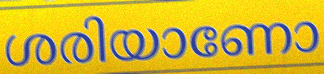
ശരിയാണോ